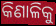
କିଣାଳିକୁ